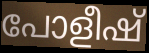
പോളീഷ്